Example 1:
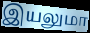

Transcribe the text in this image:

இயலுமா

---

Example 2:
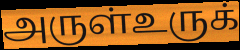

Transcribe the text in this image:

அருள்உருக்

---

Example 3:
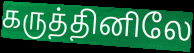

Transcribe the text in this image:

கருத்தினிலே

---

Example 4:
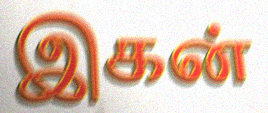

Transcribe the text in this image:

இகன்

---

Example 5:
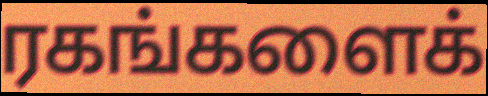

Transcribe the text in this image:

ரகங்களைக்